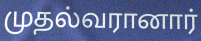
முதல்வரானார்